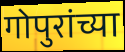
गोपुरांच्या